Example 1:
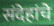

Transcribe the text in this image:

संदेहांचे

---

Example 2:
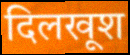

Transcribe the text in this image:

दिलखूश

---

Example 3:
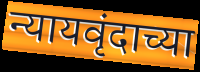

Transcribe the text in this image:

न्यायवृंदाच्या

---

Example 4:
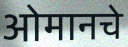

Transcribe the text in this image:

ओमानचे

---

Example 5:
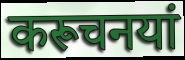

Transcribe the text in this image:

करूचनयां